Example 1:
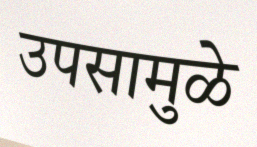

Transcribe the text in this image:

उपसामुळे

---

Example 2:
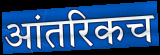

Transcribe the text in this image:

आंतरिकच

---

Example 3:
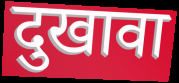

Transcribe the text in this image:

दुखावा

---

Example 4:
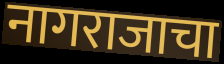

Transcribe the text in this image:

नागराजाचा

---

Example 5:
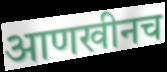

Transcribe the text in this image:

आणखीनच